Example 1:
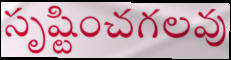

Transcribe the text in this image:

సృష్టించగలవు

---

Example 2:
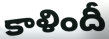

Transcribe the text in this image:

కాళిందీ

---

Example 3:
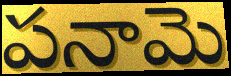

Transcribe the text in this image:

పనామె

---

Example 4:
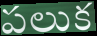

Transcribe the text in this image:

పలుక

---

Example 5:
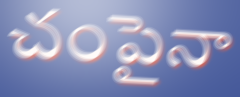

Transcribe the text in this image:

చంపైనా